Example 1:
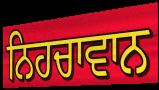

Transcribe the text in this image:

ਨਿਹਚਾਵਾਨ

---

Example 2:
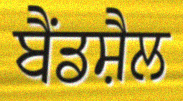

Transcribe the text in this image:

ਬੈਂਡਸ਼ੈਲ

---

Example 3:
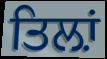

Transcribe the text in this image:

ਤਿਲ਼ਾਂ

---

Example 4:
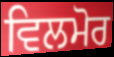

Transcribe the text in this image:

ਵਿਲਮੋਰ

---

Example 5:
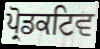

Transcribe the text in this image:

ਪ੍ਰੋਡਕਟਿਵ